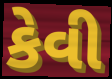
કેવી